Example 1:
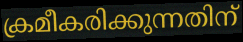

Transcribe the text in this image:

ക്രമീകരിക്കുന്നതിന്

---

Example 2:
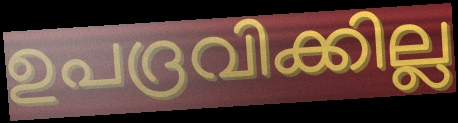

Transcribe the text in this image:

ഉപദ്രവിക്കില്ല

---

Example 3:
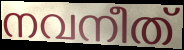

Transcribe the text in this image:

നവനീത്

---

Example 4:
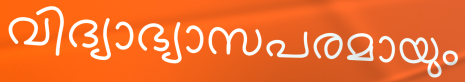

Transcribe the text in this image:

വിദ്യാഭ്യാസപരമായും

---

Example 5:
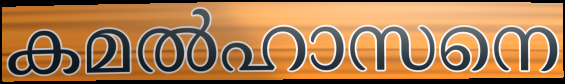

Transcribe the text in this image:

കമൽഹാസനെ